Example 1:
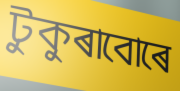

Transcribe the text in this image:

টুকুৰাবোৰে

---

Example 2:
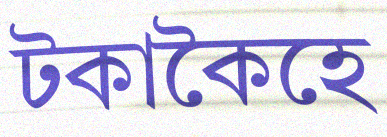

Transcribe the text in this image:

টকাকৈহে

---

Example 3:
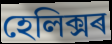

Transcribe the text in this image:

হেলিক্সৰ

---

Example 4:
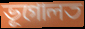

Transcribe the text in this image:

ভূগোলত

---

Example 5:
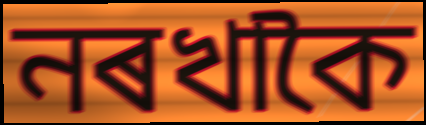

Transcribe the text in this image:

নৰখাকৈ